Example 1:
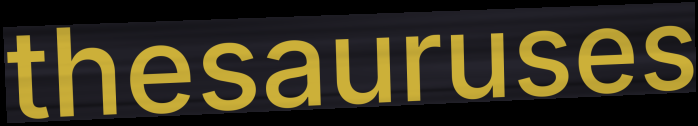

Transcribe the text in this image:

thesauruses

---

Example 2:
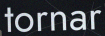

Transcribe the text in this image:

tornar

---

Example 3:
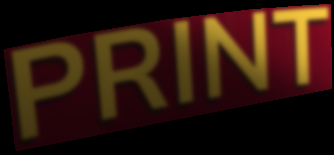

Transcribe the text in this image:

PRINT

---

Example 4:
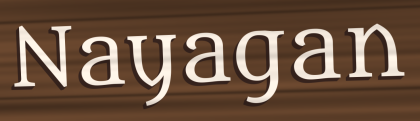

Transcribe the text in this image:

Nayagan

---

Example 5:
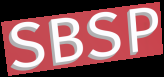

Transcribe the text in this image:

SBSP